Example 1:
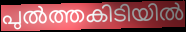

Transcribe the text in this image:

പുൽത്തകിടിയിൽ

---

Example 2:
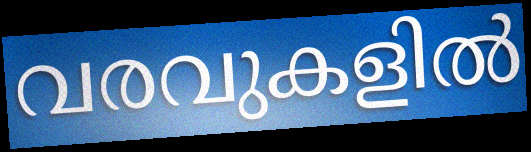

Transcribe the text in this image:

വരവുകളിൽ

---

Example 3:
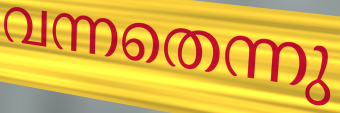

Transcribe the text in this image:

വന്നതെന്നു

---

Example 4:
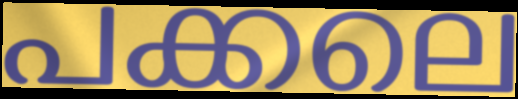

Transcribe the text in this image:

പക്കലെ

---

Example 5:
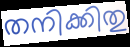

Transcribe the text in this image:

തനിക്കിതു